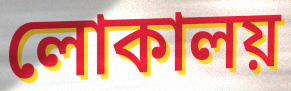
লোকালয়